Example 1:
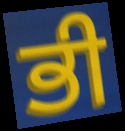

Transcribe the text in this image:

ਭੀ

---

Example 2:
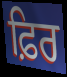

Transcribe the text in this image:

ਫ਼ਿਰ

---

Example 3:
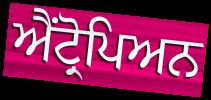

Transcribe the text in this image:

ਐਂਟ੍ਰੋਪਿਅਨ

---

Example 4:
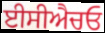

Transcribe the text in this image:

ਈਸੀਐਚਓ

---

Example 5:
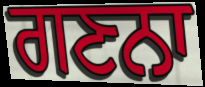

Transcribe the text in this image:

ਗਣਨਾ